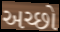
અચ્છો